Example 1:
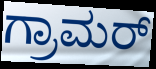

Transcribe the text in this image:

ಗ್ರಾಮರ್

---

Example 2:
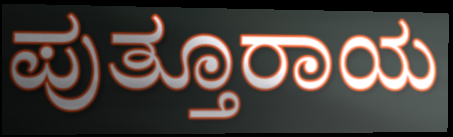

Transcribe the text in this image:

ಪುತ್ತೂರಾಯ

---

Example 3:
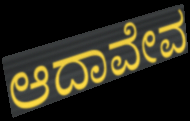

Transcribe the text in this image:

ಆದಾವೇವ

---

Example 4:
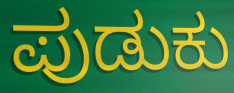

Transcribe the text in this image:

ಪುಡುಕು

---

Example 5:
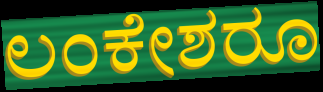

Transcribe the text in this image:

ಲಂಕೇಶರೂ